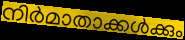
നിർമാതാക്കൾക്കും